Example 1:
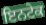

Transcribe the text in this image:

ਇਨਟੇਕ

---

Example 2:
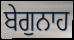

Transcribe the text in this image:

ਬੇਗੁਨਾਹ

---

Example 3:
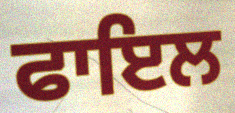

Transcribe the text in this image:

ਫਾਇਲ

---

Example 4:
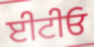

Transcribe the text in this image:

ਈਟੀਓ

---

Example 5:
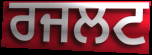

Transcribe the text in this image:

ਰਜਲਟ